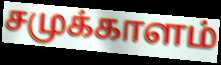
சமுக்காளம்